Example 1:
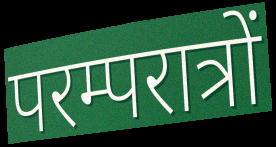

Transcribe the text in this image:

परम्परात्रों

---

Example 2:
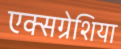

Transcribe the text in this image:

एक्सग्रेशिया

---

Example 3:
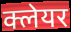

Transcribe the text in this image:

क्लेयर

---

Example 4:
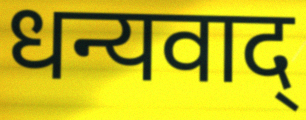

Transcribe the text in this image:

धन्यवाद्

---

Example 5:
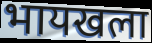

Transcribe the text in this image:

भायखला